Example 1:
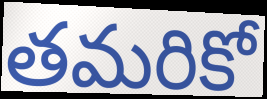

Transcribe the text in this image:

తమరికో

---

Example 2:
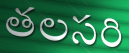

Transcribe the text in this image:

తలసరి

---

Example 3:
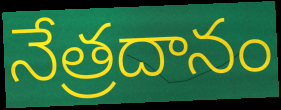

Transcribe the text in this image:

నేత్రదానం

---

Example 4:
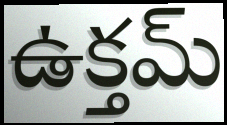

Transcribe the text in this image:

ఉక్తమ్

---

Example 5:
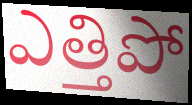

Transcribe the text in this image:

ఎత్తిపో